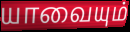
யாவையும்